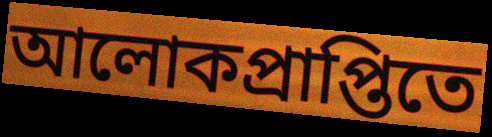
আলোকপ্রাপ্তিতে